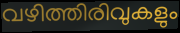
വഴിത്തിരിവുകളും